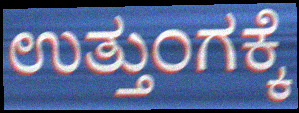
ಉತ್ತುಂಗಕ್ಕೆ